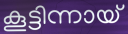
കൂട്ടിന്നായ്